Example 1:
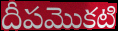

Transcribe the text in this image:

దీపమొకటి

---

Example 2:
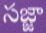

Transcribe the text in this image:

సజ్జా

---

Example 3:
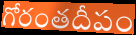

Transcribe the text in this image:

గోరంతదీపం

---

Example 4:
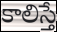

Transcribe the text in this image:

కాలిస్తే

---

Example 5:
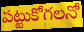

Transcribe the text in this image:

పట్టుకోగలనో